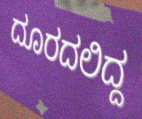
ದೂರದಲಿದ್ದ